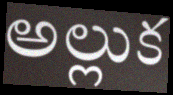
అల్లుక